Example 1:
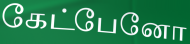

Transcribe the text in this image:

கேட்பேனோ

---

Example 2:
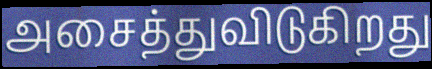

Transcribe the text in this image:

அசைத்துவிடுகிறது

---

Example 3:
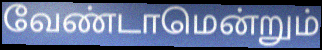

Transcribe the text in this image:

வேண்டாமென்றும்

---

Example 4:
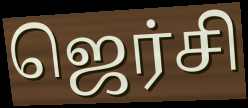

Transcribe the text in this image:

ஜெர்சி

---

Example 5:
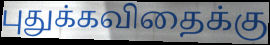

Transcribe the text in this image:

புதுக்கவிதைக்கு